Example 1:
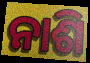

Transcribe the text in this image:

ନାଶି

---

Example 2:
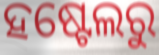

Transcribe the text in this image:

ହଷ୍ଟେଲରୁ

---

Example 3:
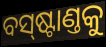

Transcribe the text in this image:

ବସ୍‌ଷ୍ଟାଣ୍ତକୁ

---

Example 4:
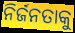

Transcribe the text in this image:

ନିର୍ଜନତାକୁ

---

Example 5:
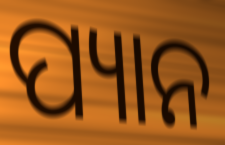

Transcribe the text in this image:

ପ୍ୟାନ